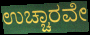
ಉಚ್ಚಾರವೇ